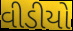
વીડીયો